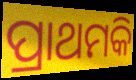
ପ୍ରାଥମକି